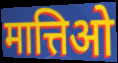
मात्तिओ